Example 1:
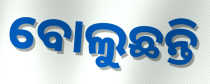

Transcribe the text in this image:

ବୋଲୁଛନ୍ତି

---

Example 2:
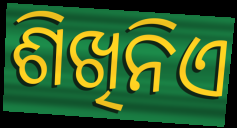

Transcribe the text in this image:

ଶିଖିନିଏ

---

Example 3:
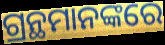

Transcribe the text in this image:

ଗ୍ରନ୍ଥମାନଙ୍କରେ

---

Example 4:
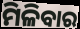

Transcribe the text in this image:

ମିଳିବାର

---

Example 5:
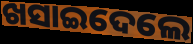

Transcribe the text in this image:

ଖସାଇଦେଲେ